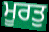
ਮੂਰਤੁ